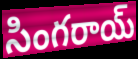
సింగరాయ్